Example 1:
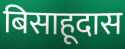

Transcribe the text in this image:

बिसाहूदास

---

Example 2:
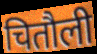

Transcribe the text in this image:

चितौली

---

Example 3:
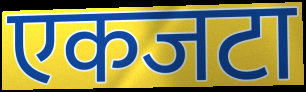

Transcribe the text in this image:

एकजटा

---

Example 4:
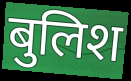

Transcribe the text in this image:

बुलिश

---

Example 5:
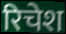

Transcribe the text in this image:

रिचेश